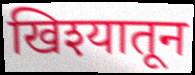
खिश्यातून